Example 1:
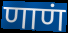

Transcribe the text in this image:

णाणं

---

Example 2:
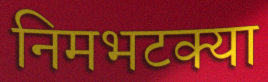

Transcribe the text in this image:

निमभटक्या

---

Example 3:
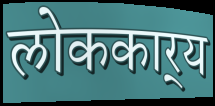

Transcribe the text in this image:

लोककार्य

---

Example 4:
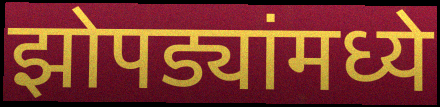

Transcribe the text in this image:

झोपड्यांमध्ये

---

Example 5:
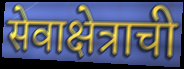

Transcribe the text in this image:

सेवाक्षेत्राची